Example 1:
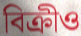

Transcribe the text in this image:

বিক্ৰীও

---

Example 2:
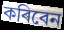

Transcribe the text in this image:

কৰিবেন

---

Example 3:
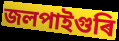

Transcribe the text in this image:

জলপাইগুৰি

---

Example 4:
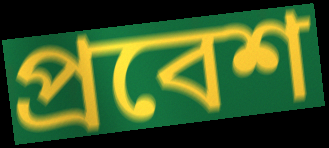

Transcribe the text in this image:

প্ৰবেশ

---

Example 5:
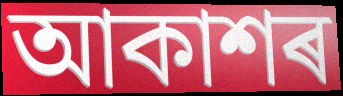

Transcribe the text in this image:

আকাশৰ